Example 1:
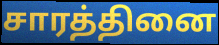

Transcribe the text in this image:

சாரத்தினை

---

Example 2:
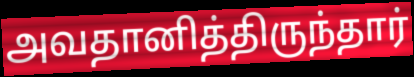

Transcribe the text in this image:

அவதானித்திருந்தார்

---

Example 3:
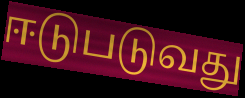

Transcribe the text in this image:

ஈடுபடுவது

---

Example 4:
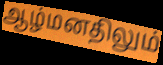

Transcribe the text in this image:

ஆழ்மனதிலும்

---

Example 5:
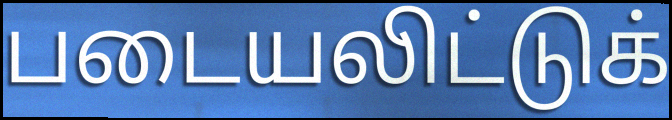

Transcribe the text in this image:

படையலிட்டுக்